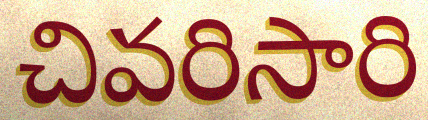
చివరిసారి